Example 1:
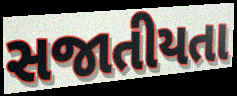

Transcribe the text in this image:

સજાતીયતા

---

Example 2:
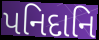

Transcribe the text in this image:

પનિદાનિ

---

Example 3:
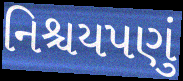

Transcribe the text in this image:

નિશ્ચયપણું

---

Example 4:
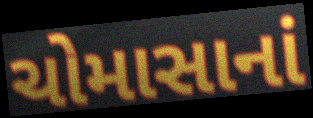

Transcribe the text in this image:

ચોમાસાનાં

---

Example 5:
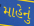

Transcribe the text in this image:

માહેનું